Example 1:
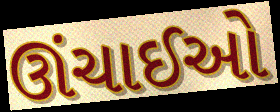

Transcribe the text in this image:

ઊંચાઈઓ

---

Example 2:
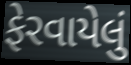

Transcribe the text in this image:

ફેરવાયેલું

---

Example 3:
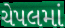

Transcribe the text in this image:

ચેપલમાં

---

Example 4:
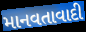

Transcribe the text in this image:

માનવતાવાદી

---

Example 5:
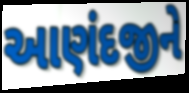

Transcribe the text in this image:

આણંદજીને